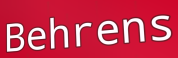
Behrens